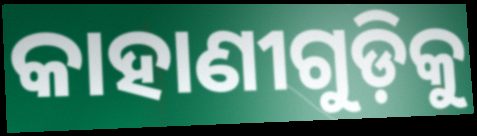
କାହାଣୀଗୁଡ଼ିକୁ